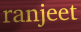
ranjeet